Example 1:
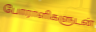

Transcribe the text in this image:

போராளிகளுடன்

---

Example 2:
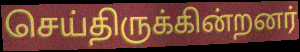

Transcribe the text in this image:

செய்திருக்கின்றனர்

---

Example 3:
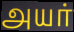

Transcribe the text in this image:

அயர்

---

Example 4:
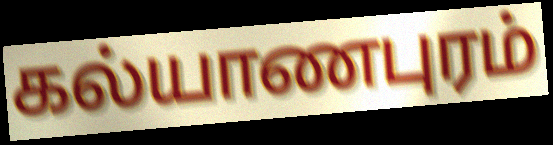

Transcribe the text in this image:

கல்யாணபுரம்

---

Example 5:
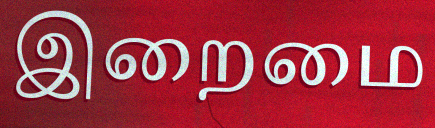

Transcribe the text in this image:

இறைமை